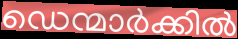
ഡെന്മാർക്കിൽ